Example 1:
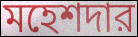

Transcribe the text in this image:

মহেশদার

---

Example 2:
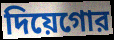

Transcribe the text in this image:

দিয়েগোর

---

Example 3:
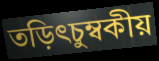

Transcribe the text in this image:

তড়িৎচুম্বকীয়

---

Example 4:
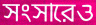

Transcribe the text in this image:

সংসারেও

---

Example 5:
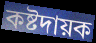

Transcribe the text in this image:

কষ্টদায়ক